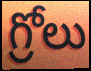
గ్రోలు